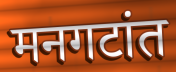
मनगटांत